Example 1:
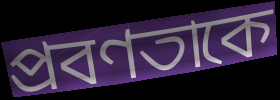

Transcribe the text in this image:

প্রবণতাকে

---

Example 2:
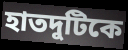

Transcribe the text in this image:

হাতদুটিকে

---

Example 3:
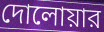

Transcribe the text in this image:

দোলোয়ার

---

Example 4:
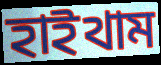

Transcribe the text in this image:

হাইথাম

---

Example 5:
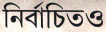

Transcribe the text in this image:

নির্বাচিতও